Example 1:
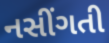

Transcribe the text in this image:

નસીંગતી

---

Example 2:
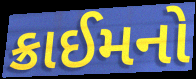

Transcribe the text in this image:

ક્રાઈમનો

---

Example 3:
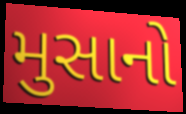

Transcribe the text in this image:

મુસાનો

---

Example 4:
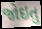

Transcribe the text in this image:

જોઇતુ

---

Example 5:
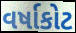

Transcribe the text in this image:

વર્ષાકોટ